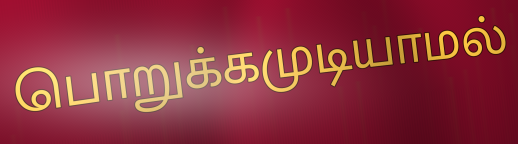
பொறுக்கமுடியாமல்